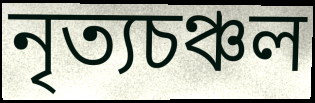
নৃত্যচঞ্চল